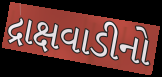
દ્રાક્ષવાડીનો